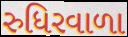
રુધિરવાળા